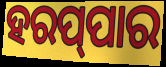
ହରପ୍‌ପାର